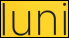
luni